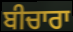
ਬੀਚਾਰਾ